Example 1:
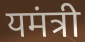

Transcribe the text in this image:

यमंत्री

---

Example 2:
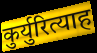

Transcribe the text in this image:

कुर्युरित्याह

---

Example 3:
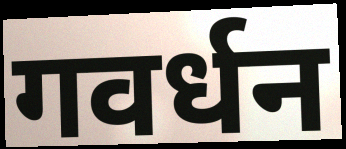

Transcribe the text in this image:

गवर्धन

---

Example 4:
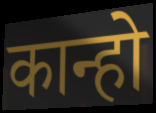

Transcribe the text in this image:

कान्हो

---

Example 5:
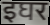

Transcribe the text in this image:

इघर